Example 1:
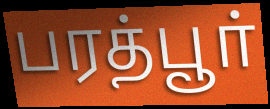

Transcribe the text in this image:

பரத்பூர்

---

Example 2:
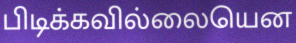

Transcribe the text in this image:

பிடிக்கவில்லையென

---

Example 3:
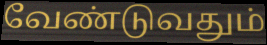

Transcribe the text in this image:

வேண்டுவதும்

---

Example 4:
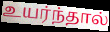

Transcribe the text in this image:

உயர்ந்தால்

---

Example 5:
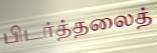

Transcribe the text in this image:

பிடர்த்தலைத்